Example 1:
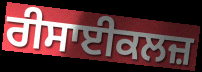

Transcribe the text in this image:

ਰੀਸਾਈਕਲਜ਼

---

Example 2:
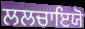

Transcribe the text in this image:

ਲਲਚਾਇਯੋ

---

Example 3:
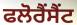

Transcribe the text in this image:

ਫਲੋਰੈਂਸੈਂਟ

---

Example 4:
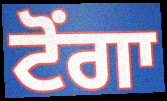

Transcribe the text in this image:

ਟੋਂਗਾ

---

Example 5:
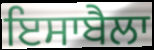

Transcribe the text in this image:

ਇਸਾਬੈਲਾ